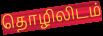
தொழிலிடம்